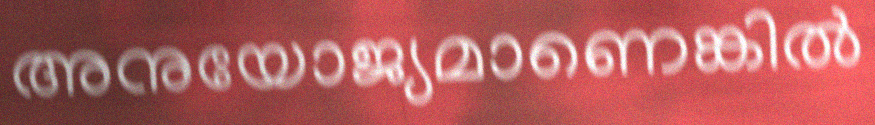
അനുയോജ്യമാണെങ്കിൽ